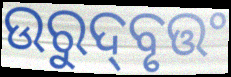
ଉରୁଦ୍‌ବୃତ୍ତଂ